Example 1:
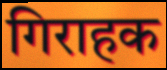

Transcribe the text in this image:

गिराहक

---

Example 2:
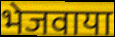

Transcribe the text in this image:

भेजवाया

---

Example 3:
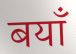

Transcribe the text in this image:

बयाँ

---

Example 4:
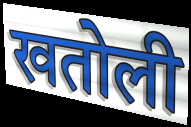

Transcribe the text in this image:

खतोली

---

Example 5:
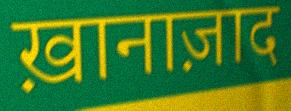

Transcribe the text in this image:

ख़ानाज़ाद